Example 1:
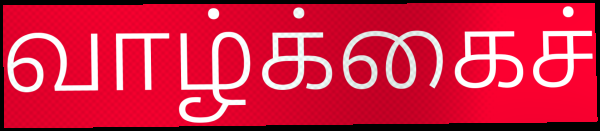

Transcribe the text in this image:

வாழ்க்கைச்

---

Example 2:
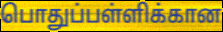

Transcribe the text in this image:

பொதுப்பள்ளிக்கான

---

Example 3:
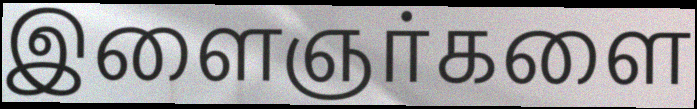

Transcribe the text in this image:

இளைஞர்களை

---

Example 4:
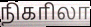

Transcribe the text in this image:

நிகரிலா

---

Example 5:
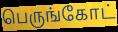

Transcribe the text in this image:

பெருங்கோட்